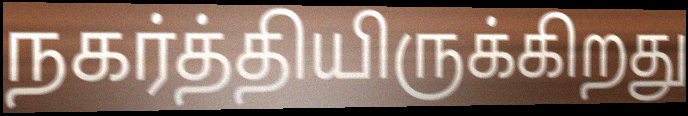
நகர்த்தியிருக்கிறது